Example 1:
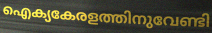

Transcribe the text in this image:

ഐക്യകേരളത്തിനുവേണ്ടി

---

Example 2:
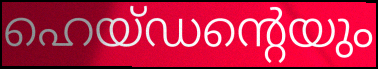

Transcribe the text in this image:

ഹെയ്ഡന്റെയും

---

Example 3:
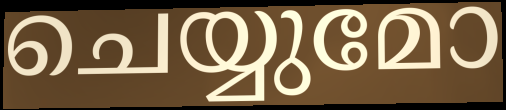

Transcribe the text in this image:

ചെയ്യുമോ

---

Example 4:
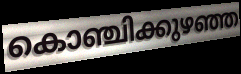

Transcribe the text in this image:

കൊഞ്ചിക്കുഴഞ്ഞ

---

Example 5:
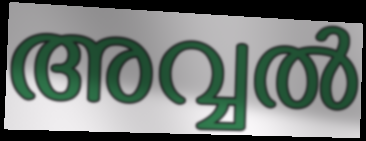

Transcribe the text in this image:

അവ്വൽ